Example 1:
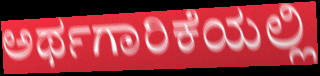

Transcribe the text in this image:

ಅರ್ಥಗಾರಿಕೆಯಲ್ಲಿ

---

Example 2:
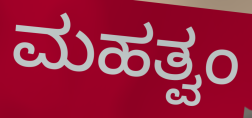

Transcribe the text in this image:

ಮಹತ್ವಂ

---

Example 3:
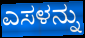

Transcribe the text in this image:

ಎಸಳನ್ನು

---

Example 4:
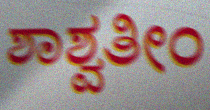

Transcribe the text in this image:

ಶಾಶ್ವತೀಂ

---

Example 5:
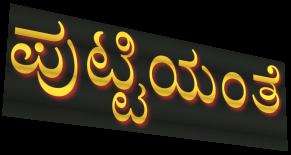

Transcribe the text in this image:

ಪುಟ್ಟಿಯಂತೆ